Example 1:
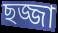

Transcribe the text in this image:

ছজ্জা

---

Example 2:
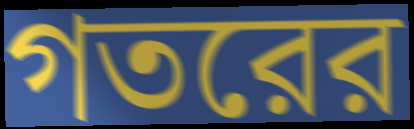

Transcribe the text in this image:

গতরের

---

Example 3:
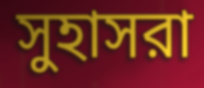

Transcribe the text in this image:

সুহাসরা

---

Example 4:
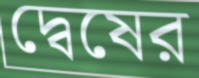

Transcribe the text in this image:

দ্বেষের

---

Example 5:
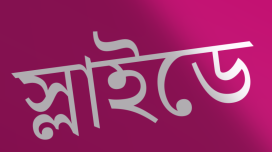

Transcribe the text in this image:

স্লাইডে